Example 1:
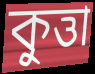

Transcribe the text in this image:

কুত্তা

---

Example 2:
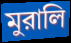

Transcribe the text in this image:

মুরালি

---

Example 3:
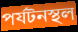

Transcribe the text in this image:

পর্যটনস্থল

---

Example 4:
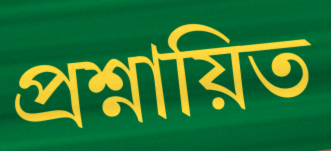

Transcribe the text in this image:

প্রশ্নায়িত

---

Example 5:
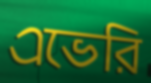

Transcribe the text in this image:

এভেরি